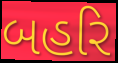
બહરિ